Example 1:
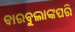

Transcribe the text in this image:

ବାରବୁଲାଙ୍କପରି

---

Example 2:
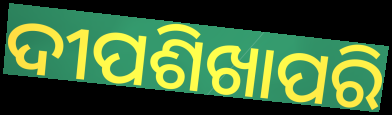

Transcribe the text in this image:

ଦୀପଶିଖାପରି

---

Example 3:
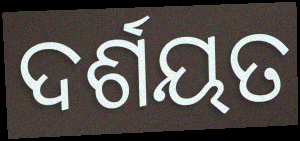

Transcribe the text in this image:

ଦର୍ଶୟତ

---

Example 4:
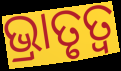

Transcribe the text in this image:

ଭ୍ରାତୃତ୍ଵ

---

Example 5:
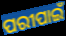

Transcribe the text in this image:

ପରୀପାଇଁ